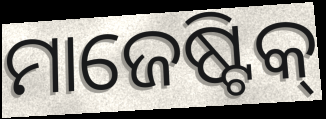
ମାଜେଷ୍ଟିକ୍